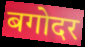
बगोदर